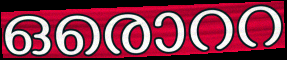
ഒരൊററ